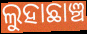
ଲୁହାଛାଞ୍ଚ